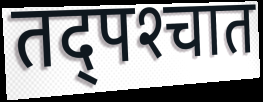
तद्पश्चात